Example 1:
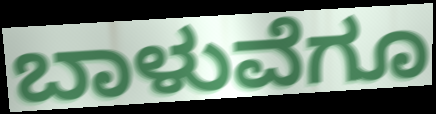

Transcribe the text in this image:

ಬಾಳುವೆಗೂ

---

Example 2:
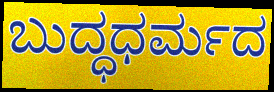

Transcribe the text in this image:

ಬುದ್ಧಧರ್ಮದ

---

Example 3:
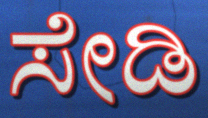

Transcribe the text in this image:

ಸೇಡಿ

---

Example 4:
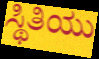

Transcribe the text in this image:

ಸ್ಥಿತಿಯು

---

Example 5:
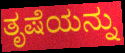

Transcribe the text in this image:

ತೃಷೆಯನ್ನು